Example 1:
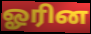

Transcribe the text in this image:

ஓரின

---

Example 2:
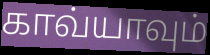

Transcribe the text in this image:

காவ்யாவும்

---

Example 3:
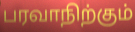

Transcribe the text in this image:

பரவாநிற்கும்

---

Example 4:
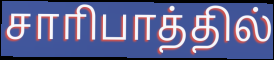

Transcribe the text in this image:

சாரிபாத்தில்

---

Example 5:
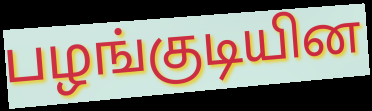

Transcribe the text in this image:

பழங்குடியின